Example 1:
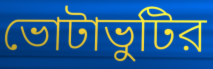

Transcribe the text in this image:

ভোটাভুটির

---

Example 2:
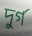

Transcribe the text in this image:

দুর্গ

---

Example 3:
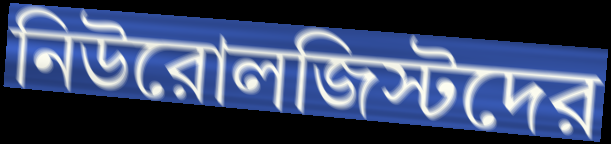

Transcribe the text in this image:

নিউরোলজিস্টদের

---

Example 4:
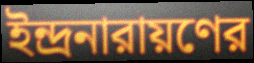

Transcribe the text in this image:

ইন্দ্রনারায়ণের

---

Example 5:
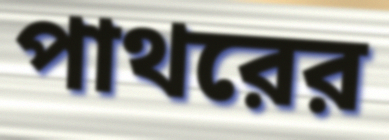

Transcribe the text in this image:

পাথরের